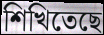
শিখিতেছে